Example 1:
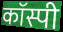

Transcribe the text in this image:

कॉस्पी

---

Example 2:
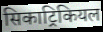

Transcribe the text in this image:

सिकाट्रिकियल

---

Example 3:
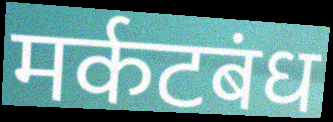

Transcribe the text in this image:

मर्कटबंध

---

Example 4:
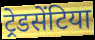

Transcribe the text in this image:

ट्रेडसेंटिया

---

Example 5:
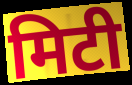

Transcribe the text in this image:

मिटी